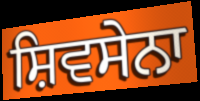
ਸ਼ਿਵਸੇਨਾ